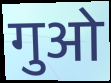
गुओ